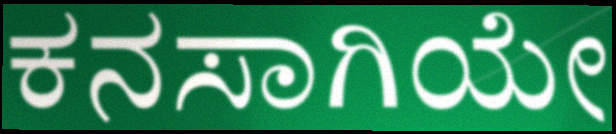
ಕನಸಾಗಿಯೇ